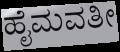
ಹೈಮವತೀ